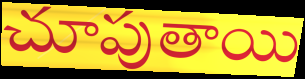
చూపుతాయి